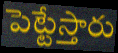
పెట్టేస్తారు